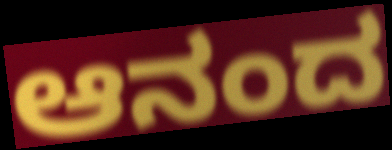
ಆನಂದ